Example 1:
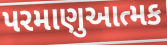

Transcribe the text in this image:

પરમાણુઆત્મક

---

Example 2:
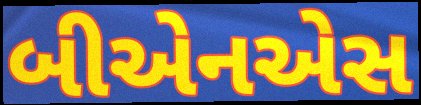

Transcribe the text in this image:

બીએનએસ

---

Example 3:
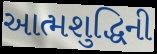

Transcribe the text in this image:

આત્મશુદ્ધિની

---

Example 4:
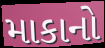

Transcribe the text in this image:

માકાનો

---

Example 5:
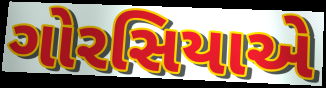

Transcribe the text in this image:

ગોરસિયાએ